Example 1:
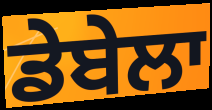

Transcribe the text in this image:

ਡੇਬੇਲਾ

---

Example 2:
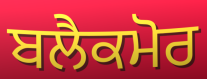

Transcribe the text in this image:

ਬਲੈਕਮੋਰ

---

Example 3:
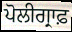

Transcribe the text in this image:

ਪੋਲੀਗ੍ਰਾਫ਼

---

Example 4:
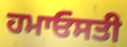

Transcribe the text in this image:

ਹਮਾਓਸਤੀ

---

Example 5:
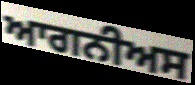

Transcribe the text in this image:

ਆਗਨੀਅਸ